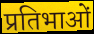
प्रतिभाओं